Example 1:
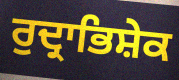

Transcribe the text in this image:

ਰੁਦ੍ਰਾਭਿਸ਼ੇਕ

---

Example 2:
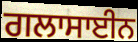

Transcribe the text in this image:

ਗਲਾਸਾਈਨ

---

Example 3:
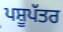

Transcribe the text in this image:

ਪਸ਼ੂਪੱਤਰ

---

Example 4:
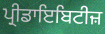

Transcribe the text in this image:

ਪ੍ਰੀਡਾਇਬਿਟੀਜ਼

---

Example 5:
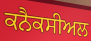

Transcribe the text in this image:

ਕਨੈਕਸੀਅਲ